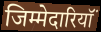
जिम्मेदारियॉं